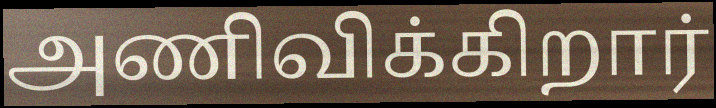
அணிவிக்கிறார்